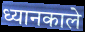
ध्यानकाले